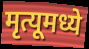
मृत्यूमध्ये